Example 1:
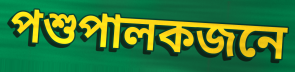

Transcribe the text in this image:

পশুপালকজনে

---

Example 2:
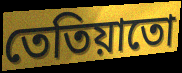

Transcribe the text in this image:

তেতিয়াতো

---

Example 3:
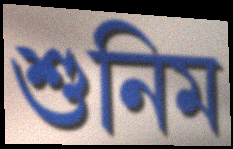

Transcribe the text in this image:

শুনিম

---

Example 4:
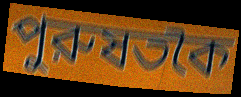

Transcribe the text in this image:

পুৰুষতকৈ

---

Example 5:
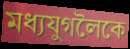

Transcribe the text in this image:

মধ্যযুগলৈকে